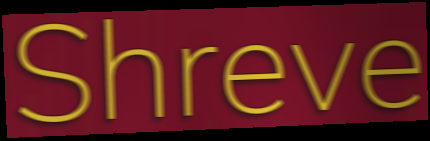
Shreve